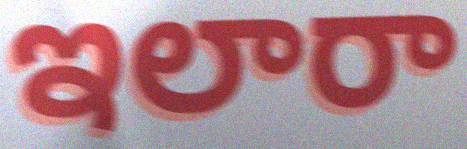
ఇలారా